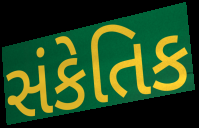
સંકેતિક